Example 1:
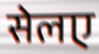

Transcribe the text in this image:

सेलए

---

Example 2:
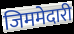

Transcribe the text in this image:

जिममेदारी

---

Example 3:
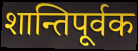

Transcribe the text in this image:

शान्तिपूर्वक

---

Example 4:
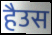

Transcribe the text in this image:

हैउस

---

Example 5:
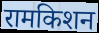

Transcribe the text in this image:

रामकिशन